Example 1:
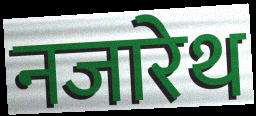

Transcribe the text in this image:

नजारेथ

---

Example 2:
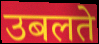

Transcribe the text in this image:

उबलते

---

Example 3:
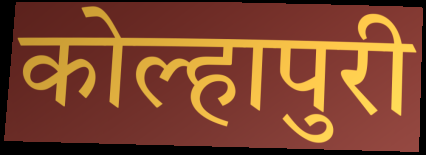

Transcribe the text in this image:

कोल्हापुरी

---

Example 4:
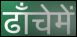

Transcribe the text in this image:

ढाँचेमें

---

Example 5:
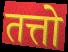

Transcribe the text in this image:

तत्तो